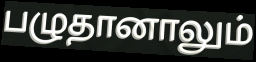
பழுதானாலும்